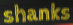
shanks